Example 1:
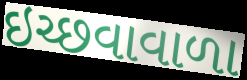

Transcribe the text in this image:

ઇચ્છવાવાળા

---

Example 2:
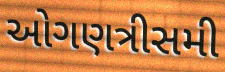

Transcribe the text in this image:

ઓગણત્રીસમી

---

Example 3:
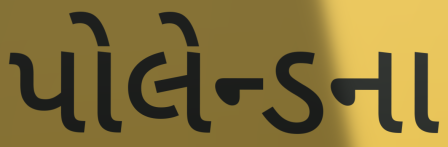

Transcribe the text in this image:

પોલેન્ડના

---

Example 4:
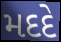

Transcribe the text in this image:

મદદે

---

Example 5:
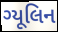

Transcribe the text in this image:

ગ્યૂલિન